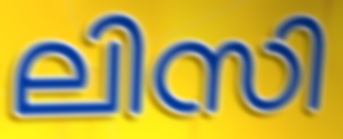
ലിസി